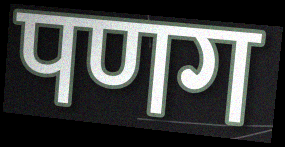
पणग